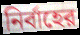
নির্বাহের